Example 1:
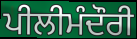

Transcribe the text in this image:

ਪੀਲੀਮੰਦੌਰੀ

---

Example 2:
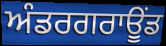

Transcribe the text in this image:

ਅੰਡਰਗਰਾਊੰਡ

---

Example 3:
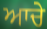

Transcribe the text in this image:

ਆਚੇ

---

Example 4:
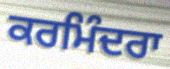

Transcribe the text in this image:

ਕਰਮਿੰਦਰਾ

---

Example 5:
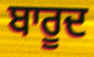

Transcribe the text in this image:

ਬਾਰੂਦ